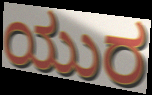
ಯುರ